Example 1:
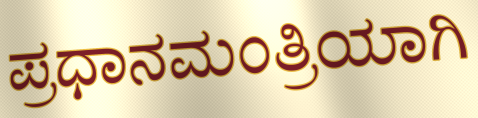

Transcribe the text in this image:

ಪ್ರಧಾನಮಂತ್ರಿಯಾಗಿ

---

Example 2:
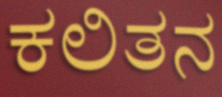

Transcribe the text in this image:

ಕಲಿತನ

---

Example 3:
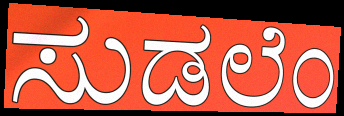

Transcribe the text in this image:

ಸುಡಲೆಂ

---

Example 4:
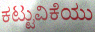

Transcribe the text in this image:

ಕಟ್ಟುವಿಕೆಯು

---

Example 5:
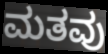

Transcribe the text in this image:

ಮತವು